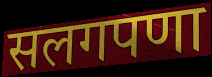
सलगपणा